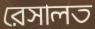
রেসালত